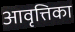
आवृत्तिका